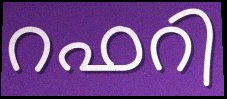
റഫറി